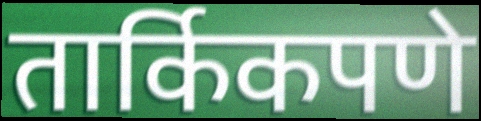
तार्किकपणे